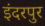
इंदरपुर